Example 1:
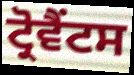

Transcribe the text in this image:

ਟ੍ਰੋਵੈਂਟਸ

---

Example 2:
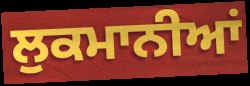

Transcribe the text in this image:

ਲੁਕਮਾਨੀਆਂ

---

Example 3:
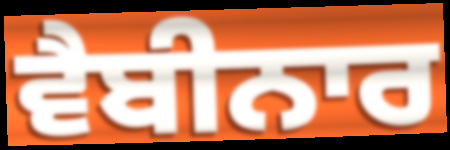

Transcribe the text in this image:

ਵੈਬੀਨਾਰ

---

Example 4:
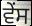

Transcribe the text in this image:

ਵੇਂਸ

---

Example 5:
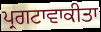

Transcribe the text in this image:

ਪ੍ਰਗਟਾਵਾਕੀਤਾ